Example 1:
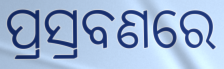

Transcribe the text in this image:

ପ୍ରସ୍ରବଣରେ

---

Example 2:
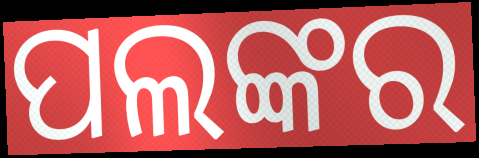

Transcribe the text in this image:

ପଲଙ୍କର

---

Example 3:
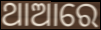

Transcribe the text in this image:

ଥାଆରେ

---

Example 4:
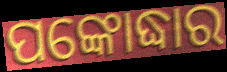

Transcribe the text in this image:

ପଙ୍କୋଦ୍ଧାର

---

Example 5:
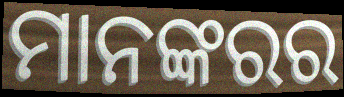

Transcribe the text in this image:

ମାନଙ୍କରର